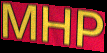
MHP